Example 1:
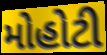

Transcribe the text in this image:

મોહોટી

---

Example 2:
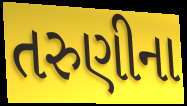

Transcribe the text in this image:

તરુણીના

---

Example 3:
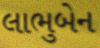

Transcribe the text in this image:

લાભુબેન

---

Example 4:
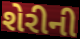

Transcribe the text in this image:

શેરીની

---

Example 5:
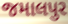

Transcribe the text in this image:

જમાલપુર